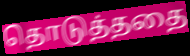
தொடுத்ததை